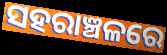
ସହରାଞ୍ଚଳରେ